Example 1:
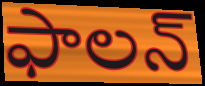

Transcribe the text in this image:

ఫాలన్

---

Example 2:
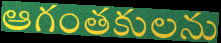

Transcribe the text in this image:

ఆగంతకులను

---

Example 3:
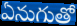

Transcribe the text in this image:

ఏనుగుతో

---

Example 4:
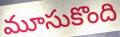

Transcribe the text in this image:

మూసుకొంది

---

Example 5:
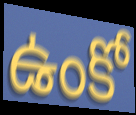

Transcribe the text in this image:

ఉంకో